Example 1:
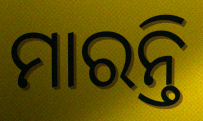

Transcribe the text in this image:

ମାରନ୍ତି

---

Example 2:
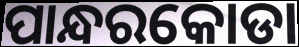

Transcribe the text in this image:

ପାନ୍ଧରକୋଡା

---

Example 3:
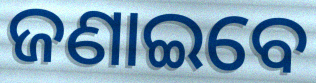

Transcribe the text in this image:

ଜଣାଇବେ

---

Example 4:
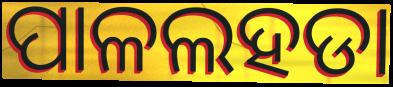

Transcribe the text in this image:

ପାଳଲହଡା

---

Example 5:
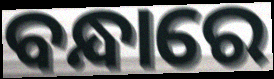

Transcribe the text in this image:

ବନ୍ଧାରେ